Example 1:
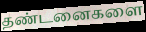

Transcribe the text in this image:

தண்டனைகளை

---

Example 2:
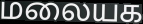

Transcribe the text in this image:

மலையக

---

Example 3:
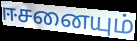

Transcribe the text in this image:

ஈசனையும்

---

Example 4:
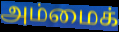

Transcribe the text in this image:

அம்மைக்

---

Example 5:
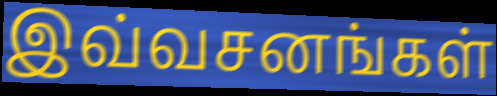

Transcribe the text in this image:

இவ்வசனங்கள்